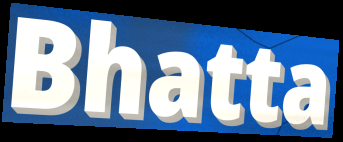
Bhatta